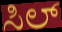
ಸಿಲ್